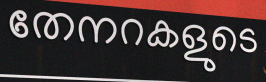
തേനറകളുടെ